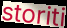
storiti